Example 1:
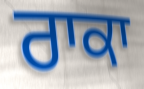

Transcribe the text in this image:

ਰਾਕਾ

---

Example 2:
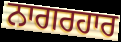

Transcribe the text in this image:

ਨਾਗਰਹਾਰ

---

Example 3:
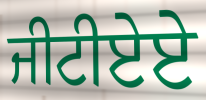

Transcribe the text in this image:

ਜੀਟੀਏਏ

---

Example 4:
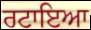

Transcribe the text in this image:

ਰਟਾਇਆ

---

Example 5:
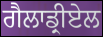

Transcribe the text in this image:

ਗੈਲਾਡ੍ਰੀਏਲ